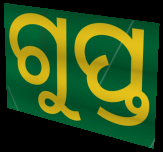
ଗୁପ୍ତ